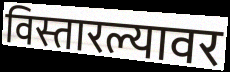
विस्तारल्यावर